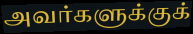
அவர்களுக்குக்